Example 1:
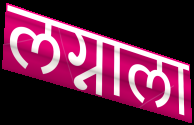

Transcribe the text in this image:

लग्नाला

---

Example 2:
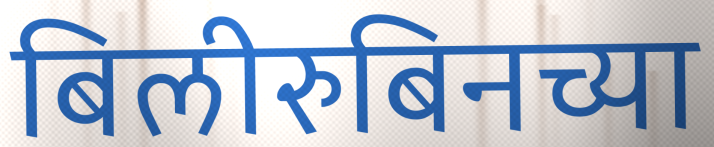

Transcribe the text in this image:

बिलीरुबिनच्या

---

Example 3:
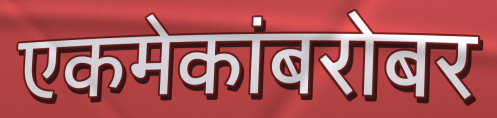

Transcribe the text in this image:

एकमेकांबरोबर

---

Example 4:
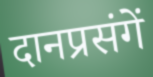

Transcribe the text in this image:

दानप्रसंगें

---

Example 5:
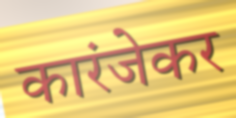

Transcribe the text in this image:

कारंजेकर